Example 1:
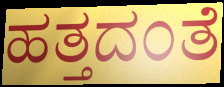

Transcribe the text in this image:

ಹತ್ತದಂತೆ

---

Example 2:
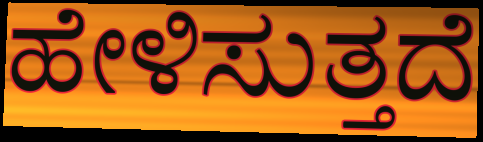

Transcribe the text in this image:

ಹೇಳಿಸುತ್ತದೆ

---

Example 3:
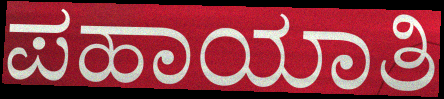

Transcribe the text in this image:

ಪಹಾಯಾತಿ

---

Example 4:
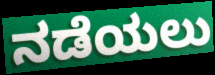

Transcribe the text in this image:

ನಡೆಯಲು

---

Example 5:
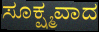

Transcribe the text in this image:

ಸೂಕ್ಷ್ಮವಾದ